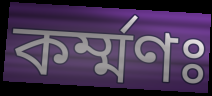
কর্ম্মণঃ